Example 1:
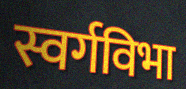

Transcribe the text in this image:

स्वर्गविभा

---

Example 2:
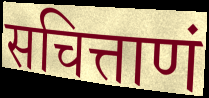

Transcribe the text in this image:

सचित्ताणं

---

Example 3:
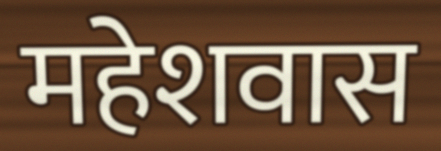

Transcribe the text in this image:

महेशवास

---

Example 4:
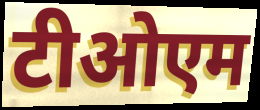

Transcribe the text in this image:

टीओएम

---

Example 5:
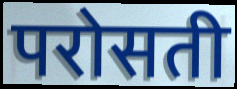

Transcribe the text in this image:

परोसती